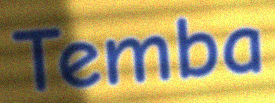
Temba